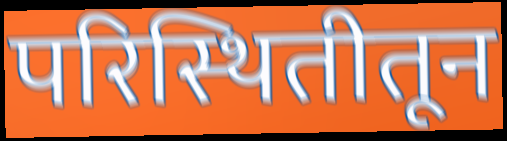
परिस्थितीतून